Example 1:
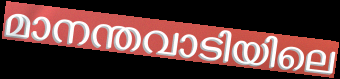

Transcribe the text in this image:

മാനന്തവാടിയിലെ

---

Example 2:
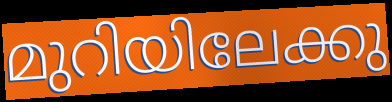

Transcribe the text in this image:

മുറിയിലേക്കു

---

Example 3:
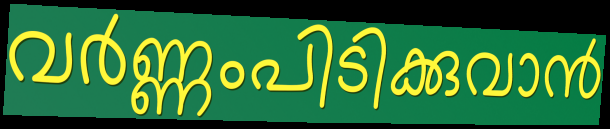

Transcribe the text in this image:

വർണ്ണംപിടിക്കുവാൻ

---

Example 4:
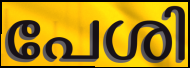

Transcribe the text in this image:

പേശി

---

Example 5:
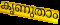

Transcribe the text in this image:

കൃണുതാം